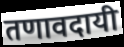
तणावदायी